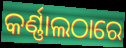
କର୍ଣ୍ଣାଲଠାରେ